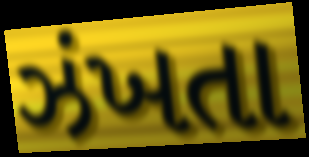
ઝંખતા